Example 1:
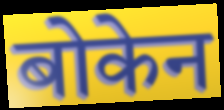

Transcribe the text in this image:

बोकेन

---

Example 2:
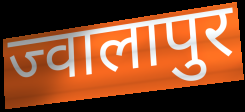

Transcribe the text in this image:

ज्वालापुर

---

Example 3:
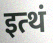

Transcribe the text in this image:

इत्थं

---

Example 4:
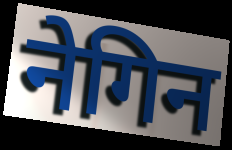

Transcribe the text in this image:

नेगिन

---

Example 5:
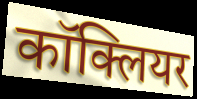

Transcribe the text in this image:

कॉक्लियर